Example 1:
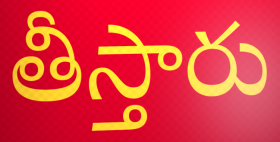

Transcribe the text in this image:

తీస్తారు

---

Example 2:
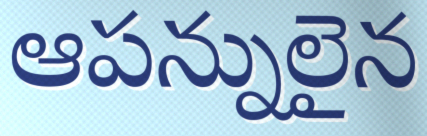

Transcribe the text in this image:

ఆపన్నులైన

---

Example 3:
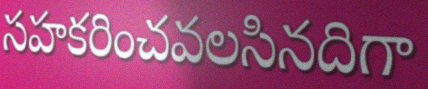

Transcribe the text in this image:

సహకరించవలసినదిగా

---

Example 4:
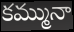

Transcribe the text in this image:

కమ్మునా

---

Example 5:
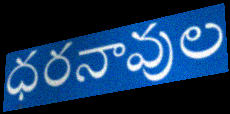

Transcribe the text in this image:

ధరనావుల